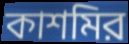
কাশমির